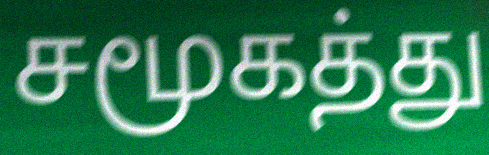
சமூகத்து